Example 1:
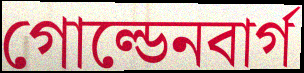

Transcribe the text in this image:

গোল্ডেনবার্গ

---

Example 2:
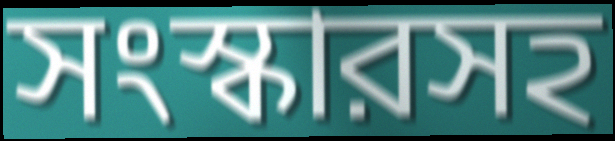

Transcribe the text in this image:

সংস্কারসহ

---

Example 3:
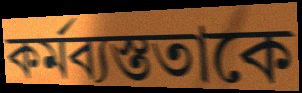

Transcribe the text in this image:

কর্মব্যস্ততাকে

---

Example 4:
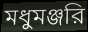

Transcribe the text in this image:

মধুমঞ্জরি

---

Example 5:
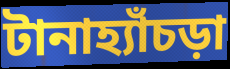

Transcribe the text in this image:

টানাহ্যাঁচড়া